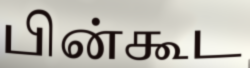
பின்கூட